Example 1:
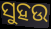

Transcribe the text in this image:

ସୁହଉ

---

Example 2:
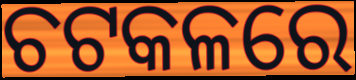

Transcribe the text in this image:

ଚଟକଳରେ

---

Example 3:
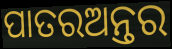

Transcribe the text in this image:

ପାତରଅନ୍ତର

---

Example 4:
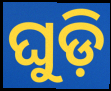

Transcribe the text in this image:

ଘୁଡ଼ି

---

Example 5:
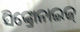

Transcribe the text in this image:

ସିଙ୍କ୍ରୋନାଇଜ୍